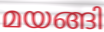
മയങ്ങി